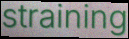
straining